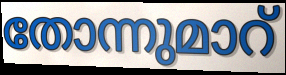
തോന്നുമാറ്